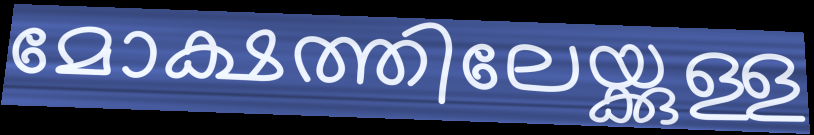
മോക്ഷത്തിലേയ്ക്കുള്ള